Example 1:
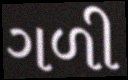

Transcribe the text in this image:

ગળી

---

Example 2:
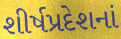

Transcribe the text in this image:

શીર્ષપ્રદેશનાં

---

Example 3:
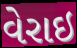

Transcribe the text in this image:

વેરાઇ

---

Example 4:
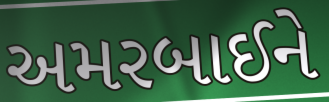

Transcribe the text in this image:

અમરબાઈને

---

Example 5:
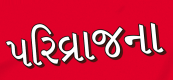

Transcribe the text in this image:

પરિવ્રાજના